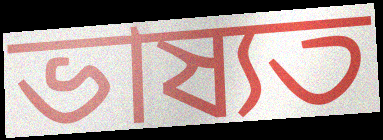
ভাষ্যত